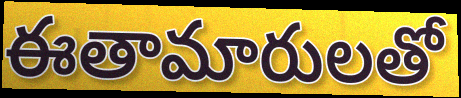
ఈతామారులతో